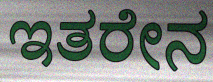
ಇತರೇನ